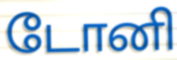
டோனி